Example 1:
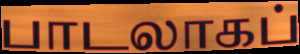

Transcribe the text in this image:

பாடலாகப்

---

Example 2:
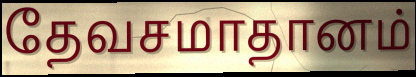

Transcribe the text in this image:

தேவசமாதானம்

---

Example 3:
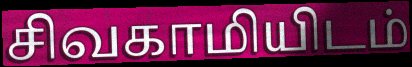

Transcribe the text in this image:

சிவகாமியிடம்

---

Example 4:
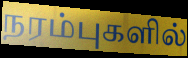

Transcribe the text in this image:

நரம்புகளில்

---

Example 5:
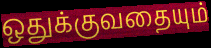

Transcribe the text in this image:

ஒதுக்குவதையும்